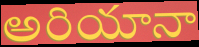
అరియానా